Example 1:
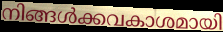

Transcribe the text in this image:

നിങ്ങൾക്കവകാശമായി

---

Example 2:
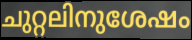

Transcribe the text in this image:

ചുറ്റലിനുശേഷം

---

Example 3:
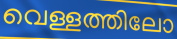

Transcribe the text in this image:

വെള്ളത്തിലോ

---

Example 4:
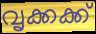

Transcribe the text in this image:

വൃക്കക്ക്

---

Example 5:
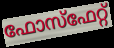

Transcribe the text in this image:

ഫോസ്ഫേറ്റ്